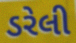
ડરેલી